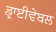
ਡ੍ਰਾਈਵੇਬਲ